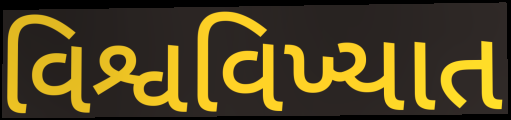
વિશ્વવિખ્યાત